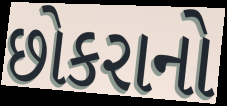
છોકરાનો